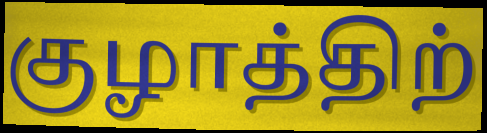
குழாத்திற்